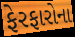
ફેરફારોના